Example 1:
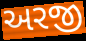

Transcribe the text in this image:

અરજી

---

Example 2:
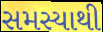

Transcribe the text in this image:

સમસ્યાથી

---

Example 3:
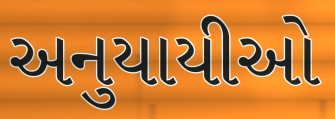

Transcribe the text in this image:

અનુયાયીઓ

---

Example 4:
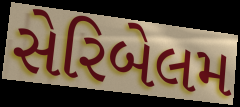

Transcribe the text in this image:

સેરિબેલમ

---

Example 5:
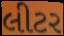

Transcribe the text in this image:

લીટર